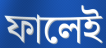
ফালেই